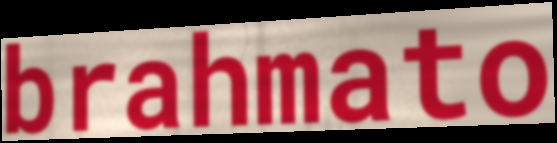
brahmato